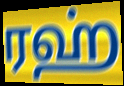
ரஹ்